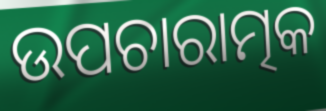
ଉପଚାରାତ୍ମକ